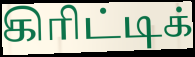
கிரிட்டிக்